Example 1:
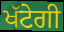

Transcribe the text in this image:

ਖੱਟੇਗੀ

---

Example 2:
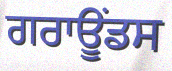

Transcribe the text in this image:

ਗਰਾਊਂਡਸ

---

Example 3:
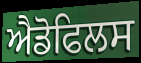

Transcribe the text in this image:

ਐਡੋਫਿਲਸ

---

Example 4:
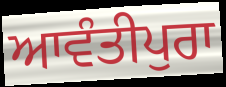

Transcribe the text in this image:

ਆਵੰਤੀਪੁਰਾ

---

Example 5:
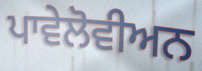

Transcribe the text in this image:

ਪਾਵੇਲੋਵੀਅਨ